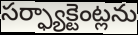
సర్ఫ్యాక్టెంట్లను